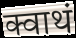
क्वाथं